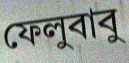
ফেলুবাবু